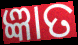
ଜ୍ଞାତ